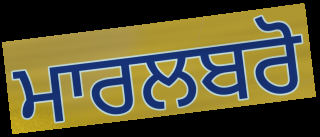
ਮਾਰਲਬਰੋ